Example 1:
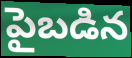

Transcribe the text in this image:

పైబడిన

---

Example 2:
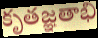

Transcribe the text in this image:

కృతజ్ఞతాభి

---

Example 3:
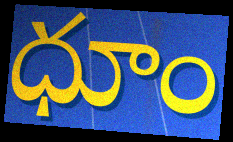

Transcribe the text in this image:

ధూం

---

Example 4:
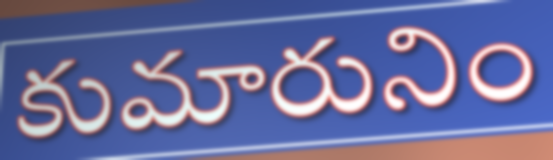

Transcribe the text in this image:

కుమారునిం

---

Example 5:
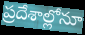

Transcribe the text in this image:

ప్రదేశాల్లోనూ